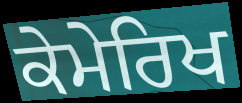
ਕੇਮੇਰਿਖ